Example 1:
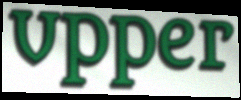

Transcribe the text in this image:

upper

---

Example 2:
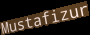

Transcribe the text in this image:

Mustafizur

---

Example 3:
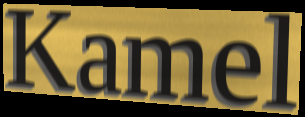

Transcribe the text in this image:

Kamel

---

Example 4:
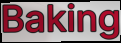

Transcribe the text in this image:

Baking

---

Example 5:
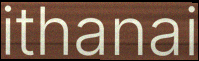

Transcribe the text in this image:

ithanai